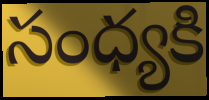
సంధ్యకి